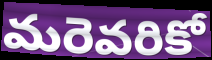
మరెవరికో